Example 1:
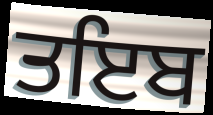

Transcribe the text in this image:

ਤਇਬ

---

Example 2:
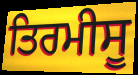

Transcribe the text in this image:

ਤਿਰਮੀਸੂ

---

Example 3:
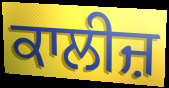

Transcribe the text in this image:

ਕਾਲੀਜ਼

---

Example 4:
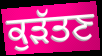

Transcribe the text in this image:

ਕੁੜੱਤਣ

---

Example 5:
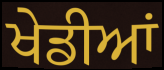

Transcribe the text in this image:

ਖੇਡੀਆਂ